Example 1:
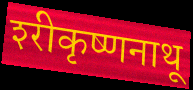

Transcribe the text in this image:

श्रीकृष्णनाथू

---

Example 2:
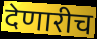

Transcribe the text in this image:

देणारीच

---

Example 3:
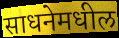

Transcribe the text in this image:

साधनेमधील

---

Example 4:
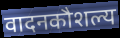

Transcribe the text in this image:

वादनकौशल्य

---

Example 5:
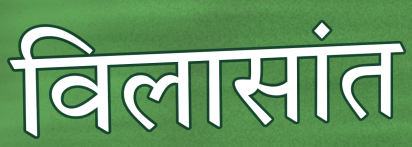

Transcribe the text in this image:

विलासांत